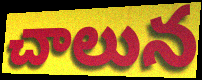
చాలున